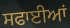
ਸਫਾਈਆਂ